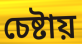
চেষ্টায়